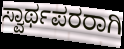
ಸ್ವಾರ್ಥಪರರಾಗಿ